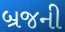
બ્રજની